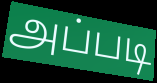
அப்படி